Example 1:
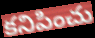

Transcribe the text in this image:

కనిపించు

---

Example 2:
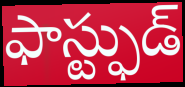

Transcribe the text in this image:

ఫాస్ట్ఫుడ్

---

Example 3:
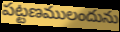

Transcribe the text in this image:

పట్టణములందును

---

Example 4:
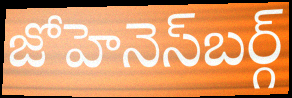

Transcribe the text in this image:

జోహెనెస్‍బర్గ్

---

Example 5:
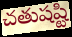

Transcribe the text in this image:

చతుషష్టి